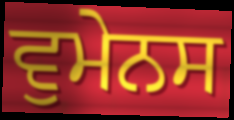
ਵੁਮੇਨਸ